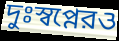
দুঃস্বপ্নেরও